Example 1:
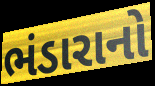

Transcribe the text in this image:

ભંડારાનો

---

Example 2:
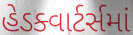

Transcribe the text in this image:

હેડક્વાર્ટર્સમાં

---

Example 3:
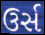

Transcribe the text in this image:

ઉર્સ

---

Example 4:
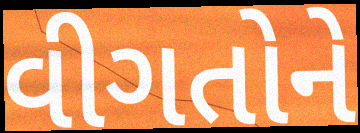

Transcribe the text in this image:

વીગતોને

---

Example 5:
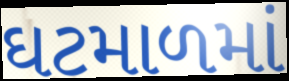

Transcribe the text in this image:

ઘટમાળમાં